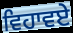
ਵਿਹਾਵਏ